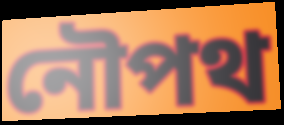
নৌপথ